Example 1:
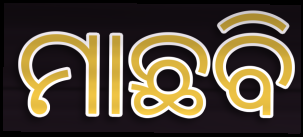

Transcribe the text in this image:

ମାଛବି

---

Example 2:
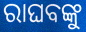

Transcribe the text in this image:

ରାଘବଙ୍କୁ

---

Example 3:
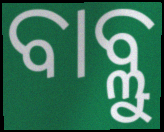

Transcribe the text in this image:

ବାବ୍ଲୁ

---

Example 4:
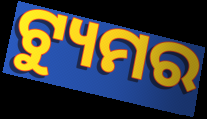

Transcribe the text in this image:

ଟ୍ୟୁମର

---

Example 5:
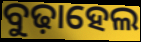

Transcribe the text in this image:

ବୁଢ଼ାହେଲ